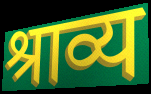
श्राव्य